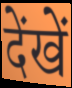
देंखें